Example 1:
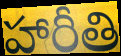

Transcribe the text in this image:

హారీతి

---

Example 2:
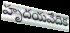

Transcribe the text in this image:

హృదయవేదిక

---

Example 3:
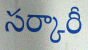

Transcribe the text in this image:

సర్కారీ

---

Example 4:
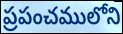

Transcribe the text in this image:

ప్రపంచములోని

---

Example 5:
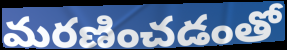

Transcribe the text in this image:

మరణించడంతో